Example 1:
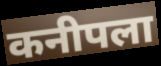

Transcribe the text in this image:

कनीपला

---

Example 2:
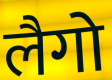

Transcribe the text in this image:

लैगो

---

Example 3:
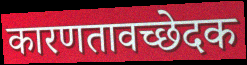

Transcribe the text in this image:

कारणतावच्छेदक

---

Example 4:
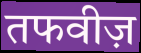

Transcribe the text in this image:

तफवीज़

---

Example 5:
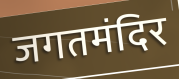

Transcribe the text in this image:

जगतमंदिर